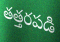
తత్తరపడి